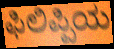
ಫಿಲಿಪ್ಪಿಯ